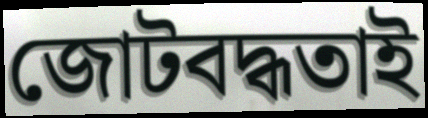
জোটবদ্ধতাই